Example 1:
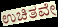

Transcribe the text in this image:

ಉಚಿತವೇ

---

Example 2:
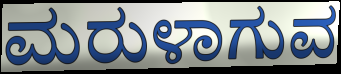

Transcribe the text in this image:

ಮರುಳಾಗುವ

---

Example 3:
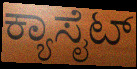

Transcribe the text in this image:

ಕ್ಯಾಸೈಟ್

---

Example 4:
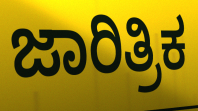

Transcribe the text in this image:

ಜಾರಿತ್ರಿಕ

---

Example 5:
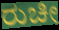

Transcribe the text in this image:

ರುಚೀ